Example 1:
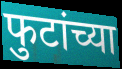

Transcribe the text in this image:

फुटांच्‍या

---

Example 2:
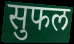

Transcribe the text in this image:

सुफल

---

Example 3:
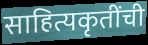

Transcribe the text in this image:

साहित्यकृतींची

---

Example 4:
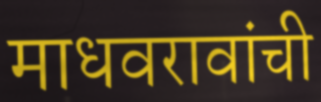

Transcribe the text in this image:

माधवरावांची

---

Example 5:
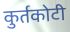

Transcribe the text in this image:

कुर्तकोटी